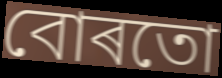
বোৰতো